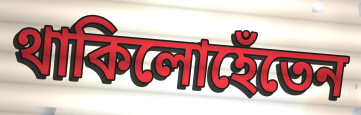
থাকিলোহেঁতেন